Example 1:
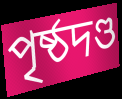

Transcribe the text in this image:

পৃষ্ঠদণ্ড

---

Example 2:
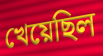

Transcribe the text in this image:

খেয়েছিল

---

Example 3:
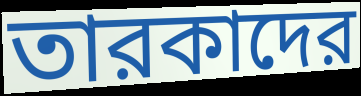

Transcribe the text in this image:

তারকাদের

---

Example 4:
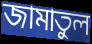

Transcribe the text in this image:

জামাতুল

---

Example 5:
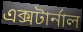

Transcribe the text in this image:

এক্সটার্নাল